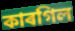
কাৰগিল